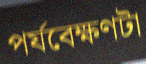
পর্যবেক্ষণটা